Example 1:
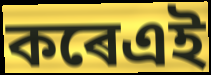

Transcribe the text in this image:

কৰেএই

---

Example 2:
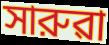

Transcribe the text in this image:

সাৰুৱা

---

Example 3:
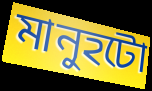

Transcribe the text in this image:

মানুহটো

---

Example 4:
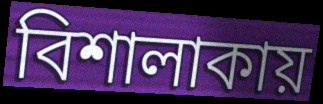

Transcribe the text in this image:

বিশালাকায়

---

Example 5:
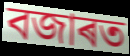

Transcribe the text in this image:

বজাৰত